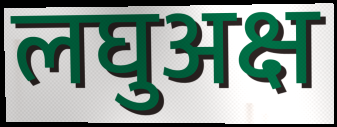
लघुअक्ष